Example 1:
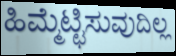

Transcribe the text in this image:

ಹಿಮ್ಮೆಟ್ಟಿಸುವುದಿಲ್ಲ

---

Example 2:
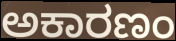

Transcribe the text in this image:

ಅಕಾರಣಂ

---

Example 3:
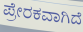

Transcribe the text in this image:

ಪ್ರೇರಕವಾಗಿದೆ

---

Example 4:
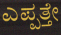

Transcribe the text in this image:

ಎಪ್ಪತ್ತೇ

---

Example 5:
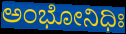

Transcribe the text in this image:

ಅಂಭೋನಿಧಿಃ